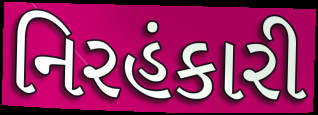
નિરહંકારી